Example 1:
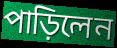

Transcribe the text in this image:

পাড়িলেন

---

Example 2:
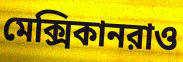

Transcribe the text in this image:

মেক্সিকানরাও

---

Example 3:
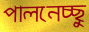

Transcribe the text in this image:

পালনেচ্ছু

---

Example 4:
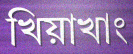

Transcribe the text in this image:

খিয়াখাং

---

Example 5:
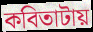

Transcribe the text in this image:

কবিতাটায়